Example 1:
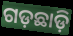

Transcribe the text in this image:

ଗଡ଼ଛାଡ଼ି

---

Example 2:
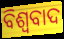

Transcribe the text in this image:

ବିଶ୍ୱବାଦ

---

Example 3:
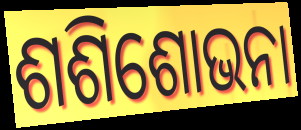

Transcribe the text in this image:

ଶଶିଶୋଭନା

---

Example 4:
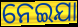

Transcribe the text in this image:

ନେଇଯା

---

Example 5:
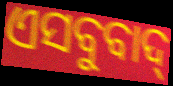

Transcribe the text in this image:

ଏସବୁବାଦ୍